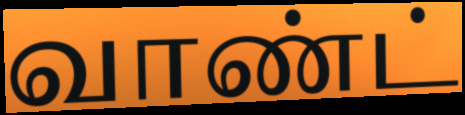
வாண்ட்